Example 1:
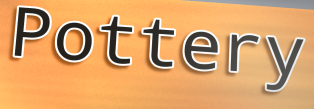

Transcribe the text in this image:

Pottery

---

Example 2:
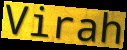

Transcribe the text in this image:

Virah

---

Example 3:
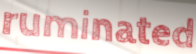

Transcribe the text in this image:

ruminated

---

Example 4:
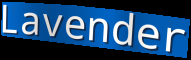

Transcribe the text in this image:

Lavender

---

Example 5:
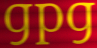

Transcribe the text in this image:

gpg